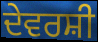
ਦੇਵਰਸ਼ੀ